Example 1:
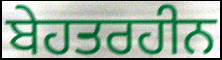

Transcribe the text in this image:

ਬੇਹਤਰਹੀਨ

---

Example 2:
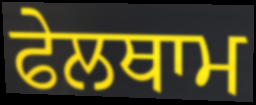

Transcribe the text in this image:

ਫੇਲਥਾਮ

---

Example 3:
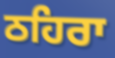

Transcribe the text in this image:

ਠਹਿਰਾ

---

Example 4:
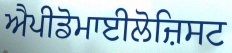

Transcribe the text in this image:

ਐਪੀਡੋਮਾਈਲੋਜ਼ਿਸਟ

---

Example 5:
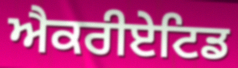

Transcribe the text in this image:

ਐਕਰੀਏਟਿਡ